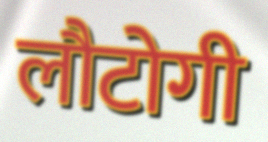
लौटोगी